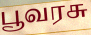
பூவரசு